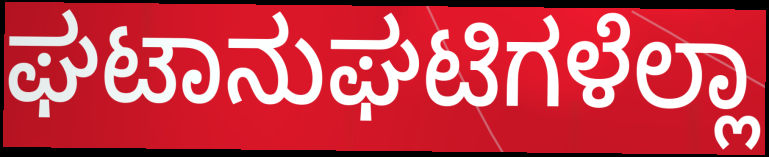
ಘಟಾನುಘಟಿಗಳೆಲ್ಲಾ